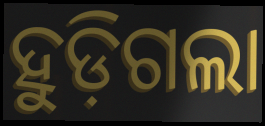
ହୁଡ଼ିଗଲା